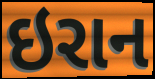
ઇરાન